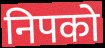
निपको